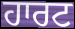
ਹਾਰਟ